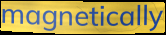
magnetically